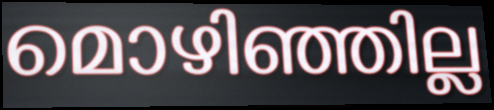
മൊഴിഞ്ഞില്ല